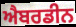
ਐਬਰਡੀਨ